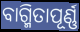
ବାଗ୍ମିତାପୂର୍ଣ୍ଣ